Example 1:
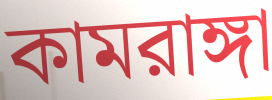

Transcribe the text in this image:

কামরাঙ্গা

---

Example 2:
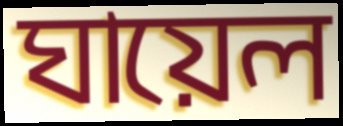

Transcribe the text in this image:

ঘায়েল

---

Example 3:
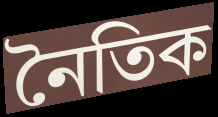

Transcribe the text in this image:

নৈতিক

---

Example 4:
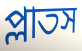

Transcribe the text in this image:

প্লাতস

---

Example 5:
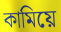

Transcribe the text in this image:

কামিয়ে